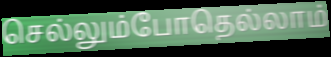
செல்லும்போதெல்லாம்